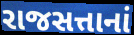
રાજસત્તાનાં